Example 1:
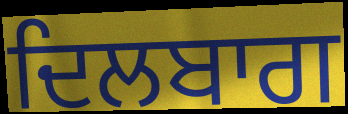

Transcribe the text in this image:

ਦਿਲਬਾਗ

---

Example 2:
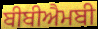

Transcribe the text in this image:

ਬੀਬੀਐਮਬੀ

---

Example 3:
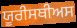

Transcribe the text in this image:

ਯੂਰੀਸਥੀਅਸ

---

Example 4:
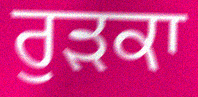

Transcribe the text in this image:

ਰੁੜਕਾ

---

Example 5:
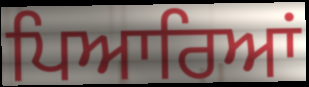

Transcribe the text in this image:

ਪਿਆਰਿਆਂ